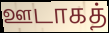
ஊடாகத்